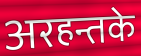
अरहन्तके